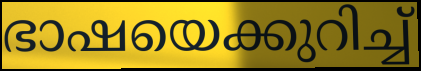
ഭാഷയെക്കുറിച്ച്